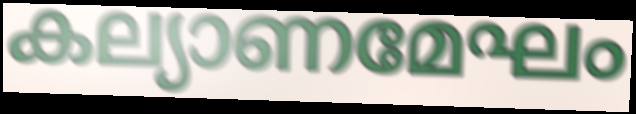
കല്യാണമേഘം